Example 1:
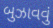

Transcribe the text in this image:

બુઝાવવું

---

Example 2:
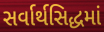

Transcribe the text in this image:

સર્વાર્થસિદ્ધમાં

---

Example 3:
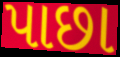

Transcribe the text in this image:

પાછા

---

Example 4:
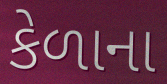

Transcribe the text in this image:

કેળાના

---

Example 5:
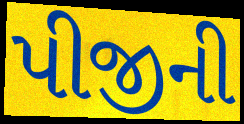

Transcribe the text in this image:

પીજીની